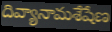
దివ్యానామశేషేణ